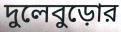
দুলেবুড়োর